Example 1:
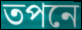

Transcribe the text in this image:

তপনে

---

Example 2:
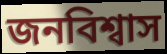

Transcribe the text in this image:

জনবিশ্বাস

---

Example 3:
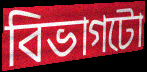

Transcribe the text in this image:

বিভাগটো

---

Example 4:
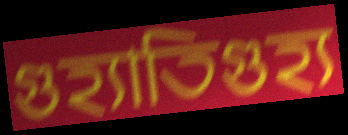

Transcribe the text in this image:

গুহ্যাতিগুহ্য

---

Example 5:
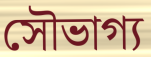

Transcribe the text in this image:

সৌভাগ্য